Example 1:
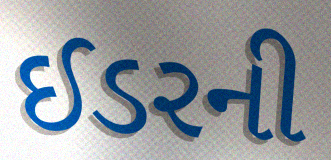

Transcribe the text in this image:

ઈડરની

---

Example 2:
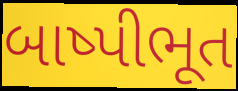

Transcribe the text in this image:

બાષ્પીભૂત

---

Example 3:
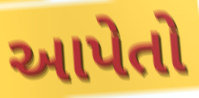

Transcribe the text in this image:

આપેતો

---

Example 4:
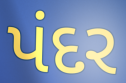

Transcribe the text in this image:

પંદર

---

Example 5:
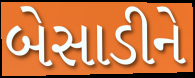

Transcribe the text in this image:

બેસાડીને